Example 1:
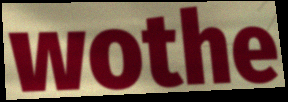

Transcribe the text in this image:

wothe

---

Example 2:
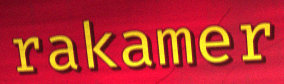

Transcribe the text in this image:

rakamer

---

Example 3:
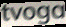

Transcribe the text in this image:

tvoga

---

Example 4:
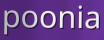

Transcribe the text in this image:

poonia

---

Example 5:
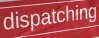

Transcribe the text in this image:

dispatching